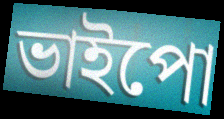
ভাইপো